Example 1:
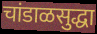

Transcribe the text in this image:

चांडाळसुद्धा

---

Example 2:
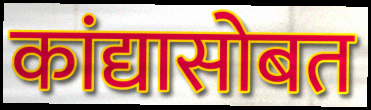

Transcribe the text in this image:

कांद्यासोबत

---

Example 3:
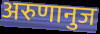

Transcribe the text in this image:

अरुणानुज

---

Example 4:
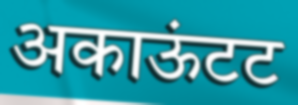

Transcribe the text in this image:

अकाऊंटट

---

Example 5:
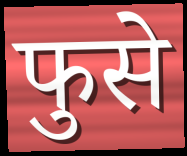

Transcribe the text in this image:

फुसे